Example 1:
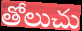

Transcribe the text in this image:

తోలుచు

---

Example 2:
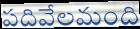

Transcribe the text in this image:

పదివేలమంది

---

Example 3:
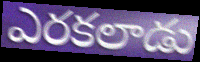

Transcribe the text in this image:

ఎరకలాడు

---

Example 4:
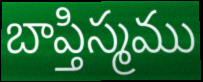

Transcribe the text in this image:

బాప్తిస్మము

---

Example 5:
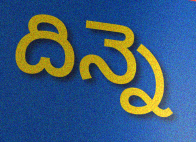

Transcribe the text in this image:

దిన్నె